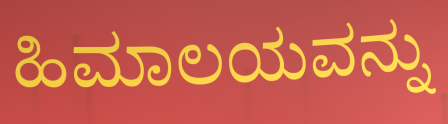
ಹಿಮಾಲಯವನ್ನು